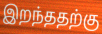
இறந்ததற்கு